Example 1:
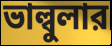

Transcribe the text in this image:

ভাল্বুলার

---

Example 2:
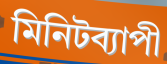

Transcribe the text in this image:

মিনিটব্যাপী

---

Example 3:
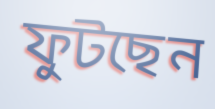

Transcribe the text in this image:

ফুটছেন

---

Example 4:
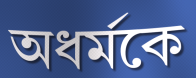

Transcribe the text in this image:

অধর্মকে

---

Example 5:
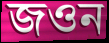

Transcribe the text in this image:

জওন